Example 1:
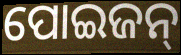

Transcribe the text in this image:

ପୋଇଜନ୍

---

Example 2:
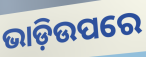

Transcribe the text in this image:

ଭାଡ଼ିଉପରେ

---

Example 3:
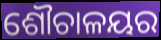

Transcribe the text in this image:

ଶୌଚାଳୟର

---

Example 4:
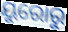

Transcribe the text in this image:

ୟୁରୋରୁ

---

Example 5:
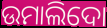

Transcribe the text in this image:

ଉମାଲିଦୋ